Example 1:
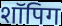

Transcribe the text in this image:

शॉपिग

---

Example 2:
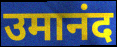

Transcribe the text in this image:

उमानंद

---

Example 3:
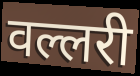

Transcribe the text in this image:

वल्लरी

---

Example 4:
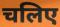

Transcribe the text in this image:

चलिए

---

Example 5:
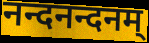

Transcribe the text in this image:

नन्दनन्दनम्